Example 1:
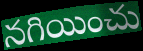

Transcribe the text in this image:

నగియించు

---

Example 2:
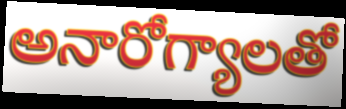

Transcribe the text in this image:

అనారోగ్యాలతో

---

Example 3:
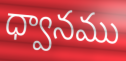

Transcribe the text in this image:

ధ్వానము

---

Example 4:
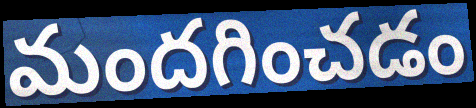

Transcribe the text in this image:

మందగించడం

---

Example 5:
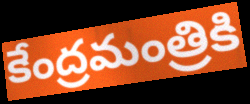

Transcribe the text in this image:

కేంద్రమంత్రికి